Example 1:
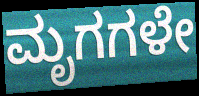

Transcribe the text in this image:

ಮೃಗಗಳೇ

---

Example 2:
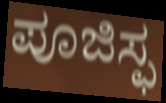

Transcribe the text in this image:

ಪೂಜಿಸ್ಫ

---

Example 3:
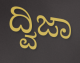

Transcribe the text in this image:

ದ್ವಿಜಾ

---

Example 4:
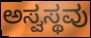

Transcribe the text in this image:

ಅಸ್ವಸ್ಥವು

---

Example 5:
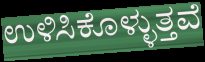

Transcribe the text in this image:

ಉಳಿಸಿಕೊಳ್ಳುತ್ತವೆ